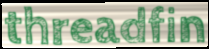
threadfin